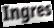
Ingres